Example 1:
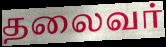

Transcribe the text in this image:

தலைவர்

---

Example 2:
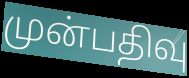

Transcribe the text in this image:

முன்பதிவு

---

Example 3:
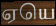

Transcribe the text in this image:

ஏயெ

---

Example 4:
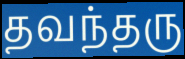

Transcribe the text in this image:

தவந்தரு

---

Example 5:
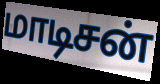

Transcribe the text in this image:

மாடிசன்